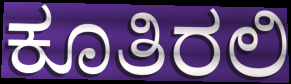
ಕೂತಿರಲಿ